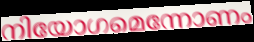
നിയോഗമെന്നോണം